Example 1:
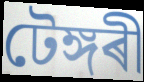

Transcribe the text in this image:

টেঙ্গৰী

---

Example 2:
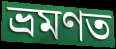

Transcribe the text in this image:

ভ্ৰমণত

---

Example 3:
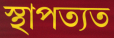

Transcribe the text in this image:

স্থাপত্যত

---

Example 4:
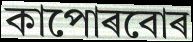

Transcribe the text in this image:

কাপোৰবোৰ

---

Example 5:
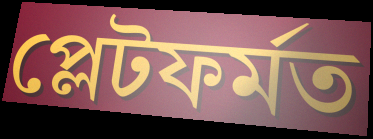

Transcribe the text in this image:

প্লেটফৰ্মত